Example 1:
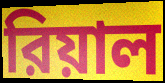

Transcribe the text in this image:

রিয়াল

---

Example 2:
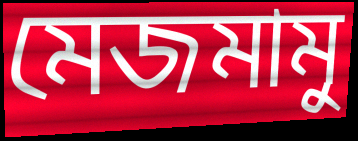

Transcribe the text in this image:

মেজমামু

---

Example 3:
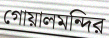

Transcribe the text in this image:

গোয়ালমন্দির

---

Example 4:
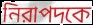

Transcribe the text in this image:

নিরাপদকে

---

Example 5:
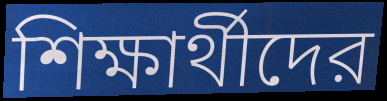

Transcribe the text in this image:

শিক্ষার্থীদের